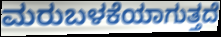
ಮರುಬಳಕೆಯಾಗುತ್ತದೆ